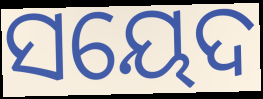
ସୟେଦ